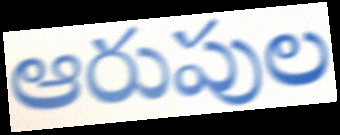
ఆరుపుల